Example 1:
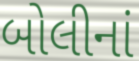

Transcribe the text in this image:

બોલીનાં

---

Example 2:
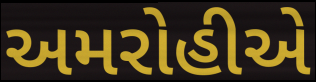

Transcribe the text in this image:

અમરોહીએ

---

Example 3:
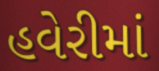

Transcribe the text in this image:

હવેરીમાં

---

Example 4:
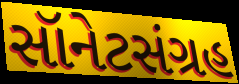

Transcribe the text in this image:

સૉનેટસંગ્રહ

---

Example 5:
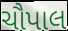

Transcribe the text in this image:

ચૌપાલ